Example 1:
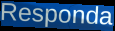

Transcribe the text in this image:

Responda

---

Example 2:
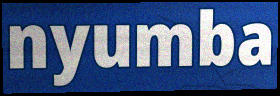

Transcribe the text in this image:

nyumba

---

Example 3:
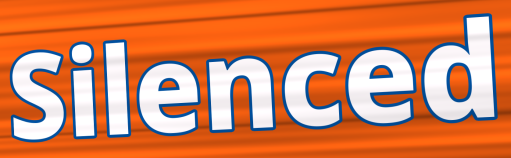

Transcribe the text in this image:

Silenced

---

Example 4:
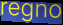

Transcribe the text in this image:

regno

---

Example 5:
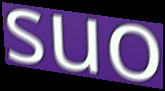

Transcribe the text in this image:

suo